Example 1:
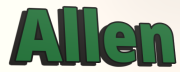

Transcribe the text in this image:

Allen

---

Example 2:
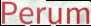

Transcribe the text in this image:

Perum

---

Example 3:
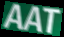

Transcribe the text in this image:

AAT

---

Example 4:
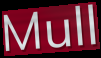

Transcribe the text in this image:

Mull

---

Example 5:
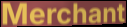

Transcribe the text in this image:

Merchant